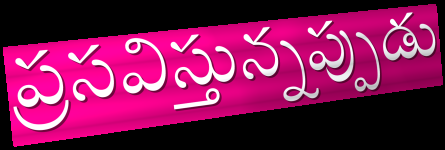
ప్రసవిస్తున్నప్పుడు